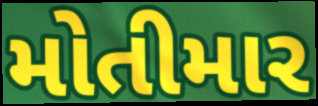
મોતીમાર